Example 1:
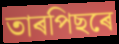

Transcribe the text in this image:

তাৰপিছৰে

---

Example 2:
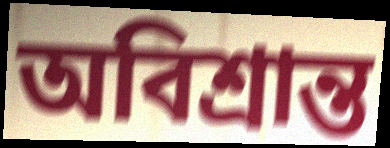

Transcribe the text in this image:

অবিশ্ৰান্ত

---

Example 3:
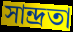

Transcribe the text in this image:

সান্দ্ৰতা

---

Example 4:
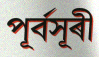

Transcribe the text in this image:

পূৰ্বসূৰী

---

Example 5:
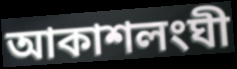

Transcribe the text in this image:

আকাশলংঘী